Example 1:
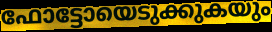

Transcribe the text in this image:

ഫോട്ടോയെടുക്കുകയും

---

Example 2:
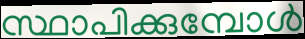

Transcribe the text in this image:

സ്ഥാപിക്കുമ്പോൾ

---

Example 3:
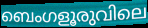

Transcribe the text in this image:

ബെംഗളൂരുവിലെ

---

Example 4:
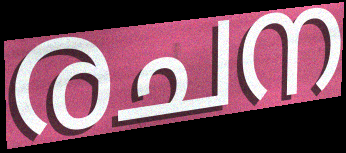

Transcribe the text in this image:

രചന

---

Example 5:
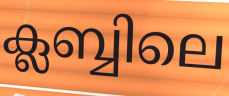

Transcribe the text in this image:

ക്ലബ്ബിലെ